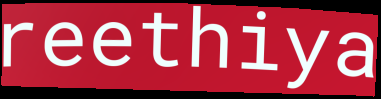
reethiya